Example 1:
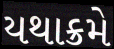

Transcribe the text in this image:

યથાક્રમે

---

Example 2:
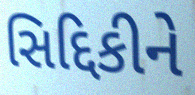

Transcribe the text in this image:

સિદ્દિકીને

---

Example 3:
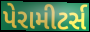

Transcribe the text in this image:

પેરામીટર્સ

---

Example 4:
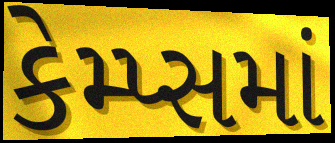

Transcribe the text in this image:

કેમ્પ્સમાં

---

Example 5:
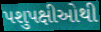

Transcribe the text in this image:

પશુપક્ષીઓથી